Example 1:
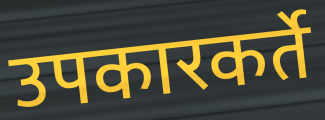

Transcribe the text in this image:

उपकारकर्ते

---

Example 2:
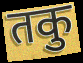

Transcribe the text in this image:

तकु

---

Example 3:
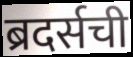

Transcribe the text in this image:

ब्रदर्सची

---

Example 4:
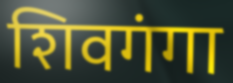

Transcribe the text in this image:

शिवगंगा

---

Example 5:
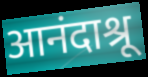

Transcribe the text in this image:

आनंदाश्रू